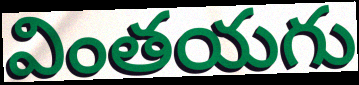
వింతయగు